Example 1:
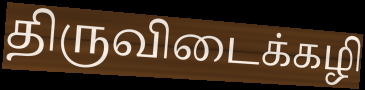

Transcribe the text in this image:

திருவிடைக்கழி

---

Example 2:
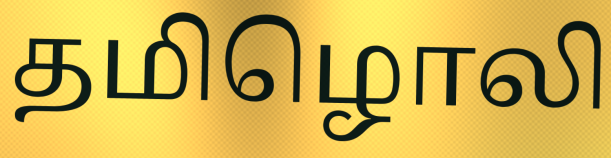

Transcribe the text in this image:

தமிழொலி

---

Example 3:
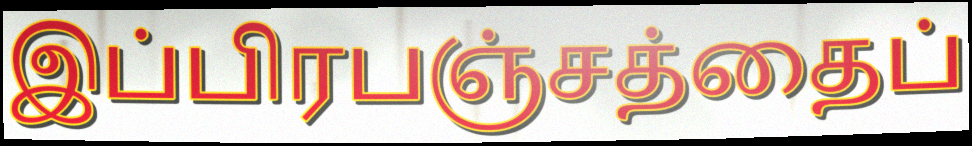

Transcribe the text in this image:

இப்பிரபஞ்சத்தைப்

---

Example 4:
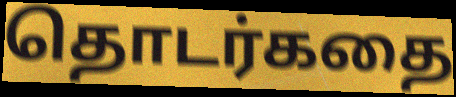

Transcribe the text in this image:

தொடர்கதை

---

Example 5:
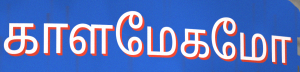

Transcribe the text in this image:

காளமேகமோ